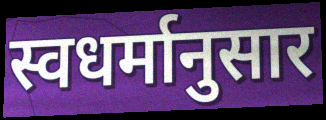
स्वधर्मानुसार